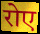
रोए